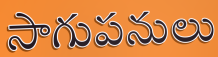
సాగుపనులు